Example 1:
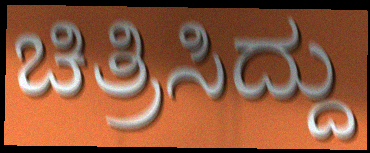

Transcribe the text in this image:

ಚಿತ್ರಿಸಿದ್ದು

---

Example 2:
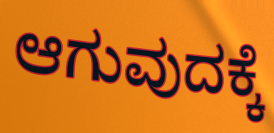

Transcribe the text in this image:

ಆಗುವುದಕ್ಕೆ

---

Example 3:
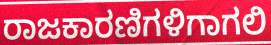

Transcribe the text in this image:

ರಾಜಕಾರಣಿಗಳಿಗಾಗಲಿ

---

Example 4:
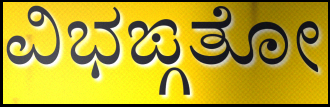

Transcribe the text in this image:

ವಿಭಙ್ಗತೋ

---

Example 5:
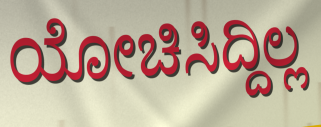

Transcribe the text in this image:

ಯೋಚಿಸಿದ್ದಿಲ್ಲ